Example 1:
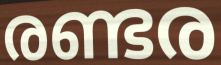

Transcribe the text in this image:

രണ്ടര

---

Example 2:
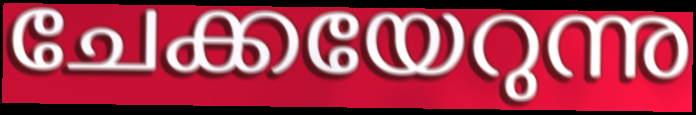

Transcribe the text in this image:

ചേക്കയേറുന്നു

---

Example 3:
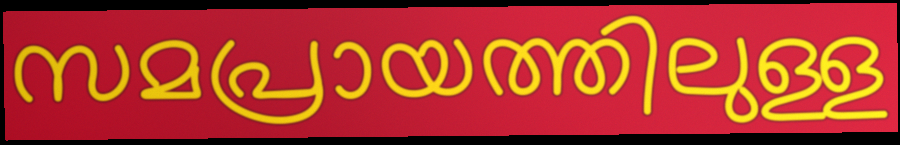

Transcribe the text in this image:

സമപ്രായത്തിലുള്ള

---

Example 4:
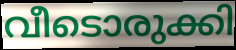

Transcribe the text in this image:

വീടൊരുക്കി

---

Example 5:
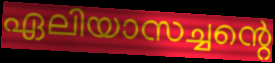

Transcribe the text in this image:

ഏലിയാസച്ചന്റെ